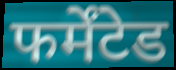
फर्मेंटेड